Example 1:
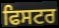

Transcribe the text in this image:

ਫਿਸਟਰ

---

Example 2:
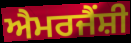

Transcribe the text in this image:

ਐਮਰਜੈਂਸ਼ੀ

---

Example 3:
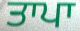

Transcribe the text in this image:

ਤਾਪਾ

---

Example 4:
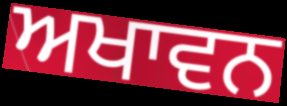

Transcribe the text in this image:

ਅਖਾਵਨ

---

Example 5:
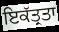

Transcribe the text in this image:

ਇਕੱਤ੍ਰਤਾ